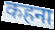
कहना